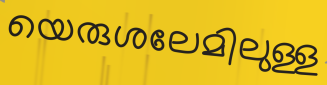
യെരുശലേമിലുള്ള